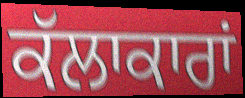
ਕੱਲਾਕਾਰਾਂ